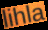
lihla